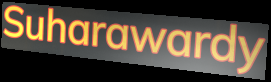
Suharawardy